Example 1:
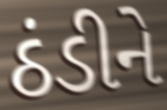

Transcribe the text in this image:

ઠંડીને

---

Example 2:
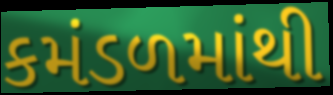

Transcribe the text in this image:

કમંડળમાંથી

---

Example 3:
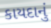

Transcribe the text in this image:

કાયદાનું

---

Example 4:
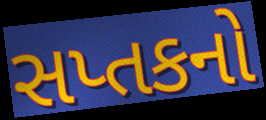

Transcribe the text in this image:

સપ્તકનો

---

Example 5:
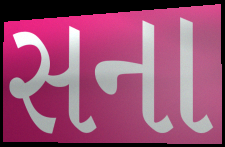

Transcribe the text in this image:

સના